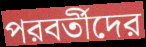
পরবর্তীদের